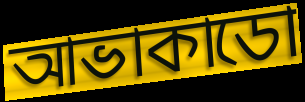
আভাকাডো